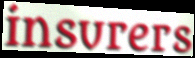
insurers